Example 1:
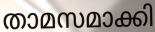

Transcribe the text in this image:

താമസമാക്കി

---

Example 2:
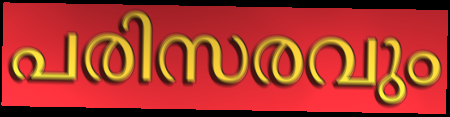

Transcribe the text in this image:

പരിസരവും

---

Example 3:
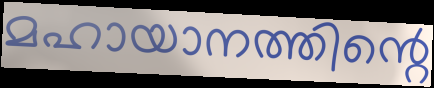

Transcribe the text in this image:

മഹായാനത്തിന്റെ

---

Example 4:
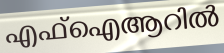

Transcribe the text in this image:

എഫ്ഐആറിൽ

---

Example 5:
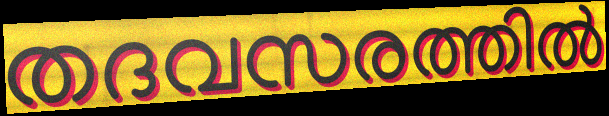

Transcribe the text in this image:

തദവസരത്തിൽ